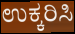
ಉಕ್ಕರಿಸಿ